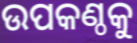
ଉପକଣ୍ଠକୁ